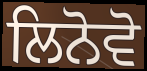
ਲਿਨੋਵੋ